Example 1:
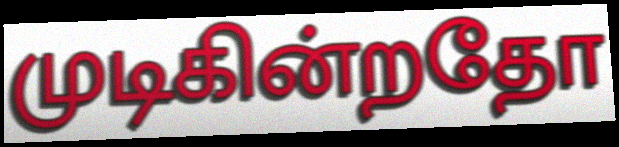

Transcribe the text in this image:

முடிகின்றதோ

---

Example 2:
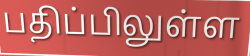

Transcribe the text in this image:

பதிப்பிலுள்ள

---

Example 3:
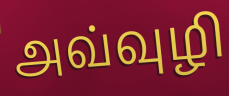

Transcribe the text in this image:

அவ்வுழி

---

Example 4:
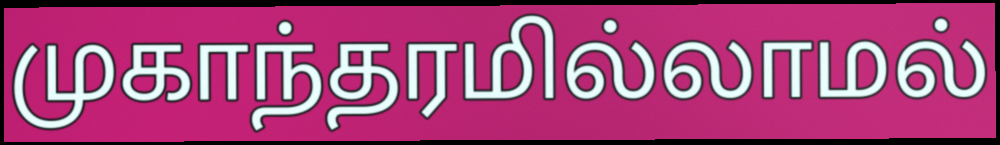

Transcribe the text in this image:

முகாந்தரமில்லாமல்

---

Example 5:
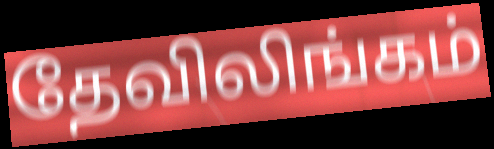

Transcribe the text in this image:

தேவிலிங்கம்